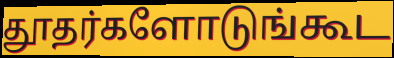
தூதர்களோடுங்கூட